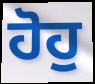
ਹੋਹੁ